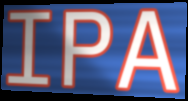
IPA